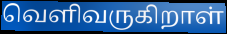
வெளிவருகிறாள்